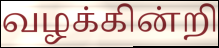
வழக்கின்றி